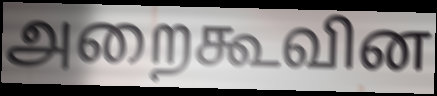
அறைகூவின